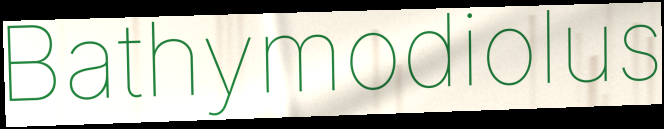
Bathymodiolus